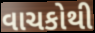
વાચકોથી